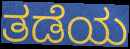
ತಡೆಯ